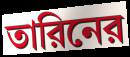
তারিনের